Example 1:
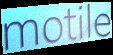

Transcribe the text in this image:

motile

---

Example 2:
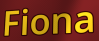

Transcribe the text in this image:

Fiona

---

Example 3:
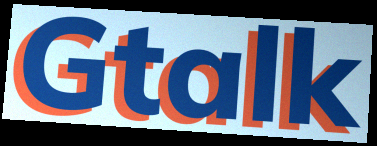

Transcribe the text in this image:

Gtalk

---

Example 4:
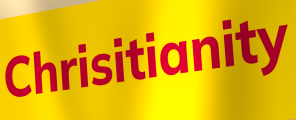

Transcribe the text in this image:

Chrisitianity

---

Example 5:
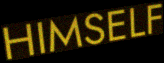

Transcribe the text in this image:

HIMSELF